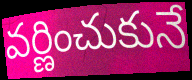
వర్ణించుకునే